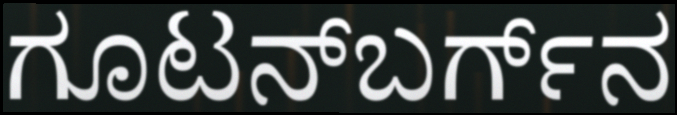
ಗೂಟನ್‌ಬರ್ಗ್‌ನ